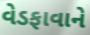
વેડફાવાને